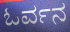
ಓರ್ವನ